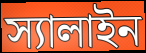
স্যালাইন